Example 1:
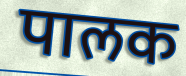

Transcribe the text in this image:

पालक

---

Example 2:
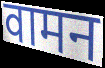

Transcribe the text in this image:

वामन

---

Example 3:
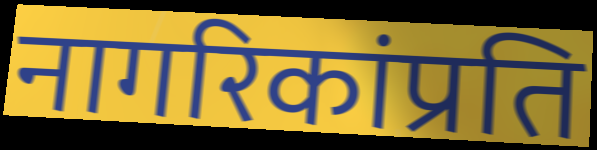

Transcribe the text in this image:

नागरिकांप्रति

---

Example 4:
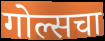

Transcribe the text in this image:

गोल्सचा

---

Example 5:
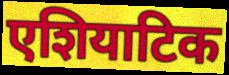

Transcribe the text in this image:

एशियाटिक